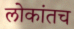
लोकांतच